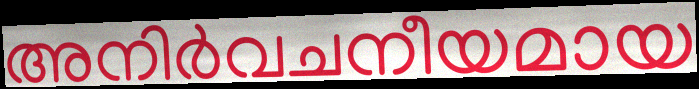
അനിർവചനീയമായ